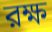
রক্ষ